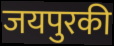
जयपुरकी